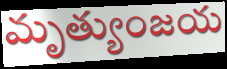
మృత్యుంజయ